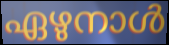
ഏഴുനാൾ